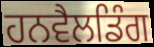
ਹਨਵੈਲਡਿੰਗ